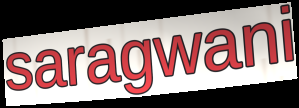
saragwani